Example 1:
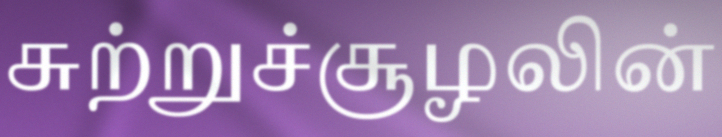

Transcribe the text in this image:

சுற்றுச்சூழலின்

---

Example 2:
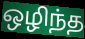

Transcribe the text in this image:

ஒழிந்த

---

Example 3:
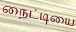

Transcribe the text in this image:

நைட்டியை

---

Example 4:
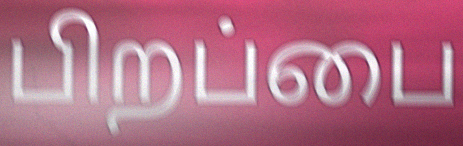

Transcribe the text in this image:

பிறப்பை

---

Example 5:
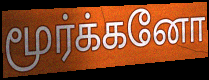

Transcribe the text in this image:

மூர்க்கனோ